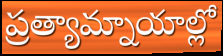
ప్రత్యామ్నాయాల్లో